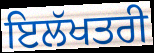
ਇਲੱਖਤਰੀ